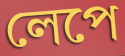
লেপে